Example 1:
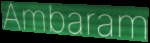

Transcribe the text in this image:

Ambaram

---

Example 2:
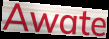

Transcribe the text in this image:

Awate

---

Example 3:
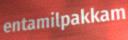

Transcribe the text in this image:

entamilpakkam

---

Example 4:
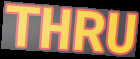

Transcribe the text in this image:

THRU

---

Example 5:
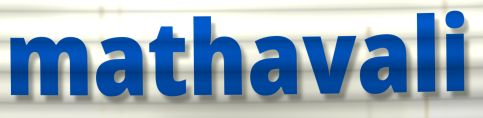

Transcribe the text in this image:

mathavali